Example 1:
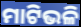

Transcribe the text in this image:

ମାଟିଭଳି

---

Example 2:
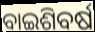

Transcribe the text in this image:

ବାଇଶିବର୍ଷ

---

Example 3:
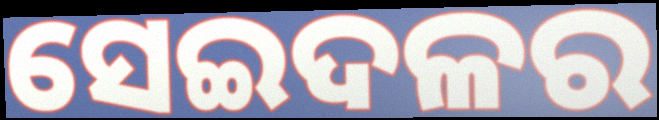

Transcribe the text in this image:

ସେଇଦଳର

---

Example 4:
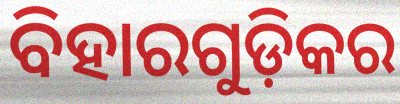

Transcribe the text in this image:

ବିହାରଗୁଡ଼ିକର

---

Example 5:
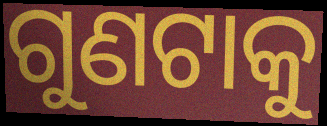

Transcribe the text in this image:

ଗୁଣଟାକୁ